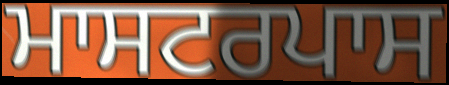
ਮਾਸਟਰਪਾਸ